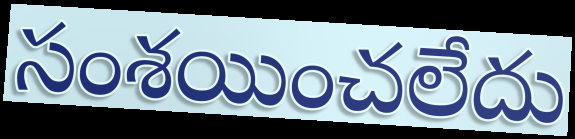
సంశయించలేదు